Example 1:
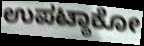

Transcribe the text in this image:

ಉಪಟ್ಠಾಕೋ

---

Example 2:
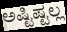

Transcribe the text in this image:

ಅಷ್ಟಿಷ್ಟಲ್ಲ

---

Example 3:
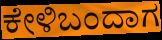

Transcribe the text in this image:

ಕೇಳಿಬಂದಾಗ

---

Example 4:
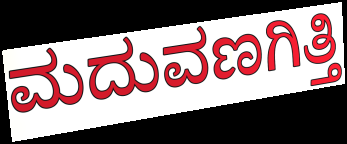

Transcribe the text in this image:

ಮದುವಣಗಿತ್ತಿ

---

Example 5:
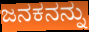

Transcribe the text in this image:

ಜನಕನನ್ನು